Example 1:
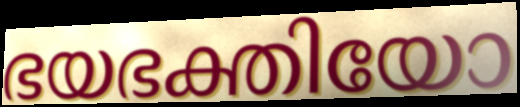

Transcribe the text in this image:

ഭയഭക്തിയോ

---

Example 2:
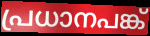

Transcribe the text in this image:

പ്രധാനപങ്ക്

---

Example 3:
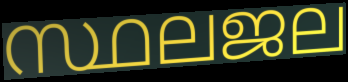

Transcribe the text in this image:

സ്ഥലജല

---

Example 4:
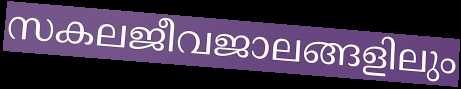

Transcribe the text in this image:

സകലജീവജാലങ്ങളിലും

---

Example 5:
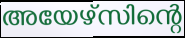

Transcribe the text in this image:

അയേഴ്സിന്റെ